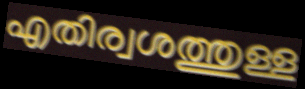
എതിര്വശത്തുള്ള